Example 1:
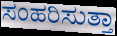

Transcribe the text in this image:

ಸಂಹರಿಸುತ್ತಾ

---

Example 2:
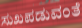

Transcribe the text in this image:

ಸುಖಪಡುವಂತೆ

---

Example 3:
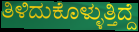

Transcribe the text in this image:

ತಿಳಿದುಕೊಳ್ಳುತ್ತಿದ್ದೆ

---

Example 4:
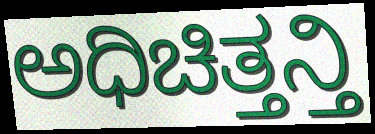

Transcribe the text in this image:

ಅಧಿಚಿತ್ತನ್ತಿ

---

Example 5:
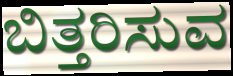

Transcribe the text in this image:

ಬಿತ್ತರಿಸುವ